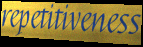
repetitiveness